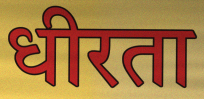
धीरता